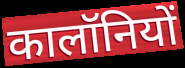
कालॉनियों